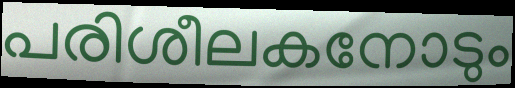
പരിശീലകനോടും